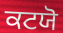
ਕਟਯੋ